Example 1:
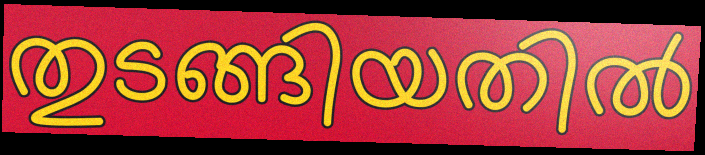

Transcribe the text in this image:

തുടങ്ങിയതിൽ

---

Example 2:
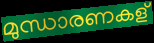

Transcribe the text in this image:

മുന്ധാരണകള്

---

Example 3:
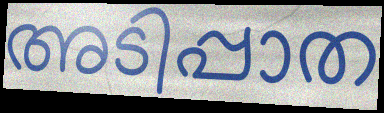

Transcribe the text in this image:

അടിപ്പാത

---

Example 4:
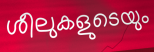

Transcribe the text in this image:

ശീലുകളുടെയും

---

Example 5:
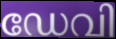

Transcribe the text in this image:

ഡേവി